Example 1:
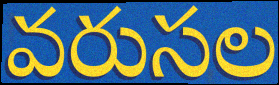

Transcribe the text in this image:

వరుసల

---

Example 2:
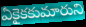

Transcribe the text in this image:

ఏకైకకుమారుని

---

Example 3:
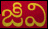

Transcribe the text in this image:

జీవి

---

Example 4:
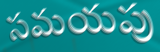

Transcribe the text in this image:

సమయపు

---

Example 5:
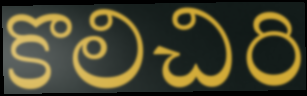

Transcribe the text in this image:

కొలిచిరి